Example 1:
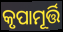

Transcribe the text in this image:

କୃପାମୂର୍ତ୍ତି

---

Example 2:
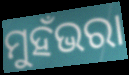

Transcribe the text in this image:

ମୁହଁଭରା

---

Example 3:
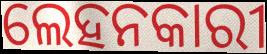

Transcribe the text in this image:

ଲେହନକାରୀ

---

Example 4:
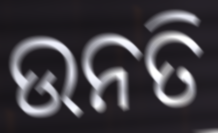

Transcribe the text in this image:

ଉନତି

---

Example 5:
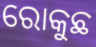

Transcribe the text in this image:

ରୋକୁଛ